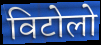
विटोलो